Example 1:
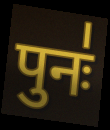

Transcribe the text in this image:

पुनः॑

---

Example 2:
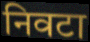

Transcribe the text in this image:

निवटा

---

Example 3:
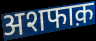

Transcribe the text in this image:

अशफाक़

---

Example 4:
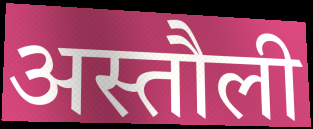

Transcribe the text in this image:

अस्तौली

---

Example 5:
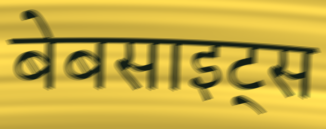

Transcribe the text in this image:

बेबसाइट्स